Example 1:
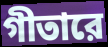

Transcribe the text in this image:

গীতারে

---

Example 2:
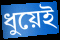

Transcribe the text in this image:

ধুয়েই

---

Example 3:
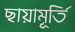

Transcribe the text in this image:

ছায়ামূর্তি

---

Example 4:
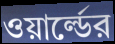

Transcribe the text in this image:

ওয়ার্ল্ডের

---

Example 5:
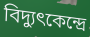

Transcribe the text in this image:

বিদ্যুৎকেন্দ্রে